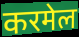
करमेल